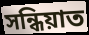
সন্ধিয়াত